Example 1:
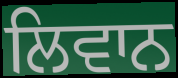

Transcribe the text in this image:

ਲਿਵਾਨ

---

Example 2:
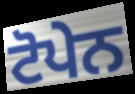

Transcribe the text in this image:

ਟੋਪੇਨ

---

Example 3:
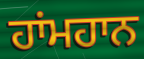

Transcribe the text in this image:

ਹਾਂਮਹਾਨ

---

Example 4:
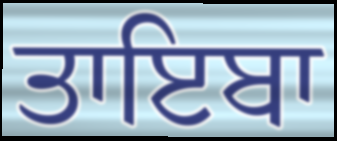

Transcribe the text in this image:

ਤਾਇਬਾ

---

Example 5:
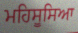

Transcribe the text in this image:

ਮਹਿਸੂਸਿਆ